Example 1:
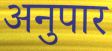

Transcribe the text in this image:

अनुपार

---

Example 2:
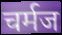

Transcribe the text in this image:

चर्मज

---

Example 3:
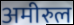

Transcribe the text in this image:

अमीरुल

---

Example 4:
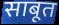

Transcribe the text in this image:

साबूत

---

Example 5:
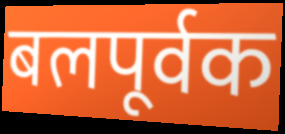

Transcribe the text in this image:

बलपूर्वक